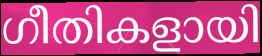
ഗീതികളായി